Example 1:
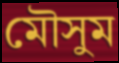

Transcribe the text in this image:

মৌসুম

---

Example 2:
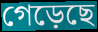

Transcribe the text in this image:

গেড়েছে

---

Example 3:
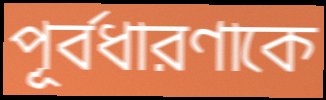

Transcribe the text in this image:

পূর্বধারণাকে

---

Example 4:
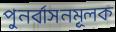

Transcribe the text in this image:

পুনর্বাসনমূলক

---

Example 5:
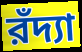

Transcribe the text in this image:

রঁদ্যা